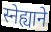
स्नेह्याने